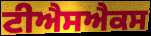
ਟੀਐਸਐਕਸ